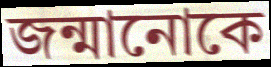
জন্মানোকে